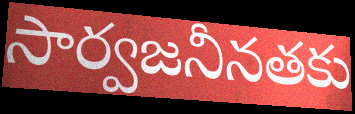
సార్వజనీనతకు